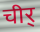
चीर्